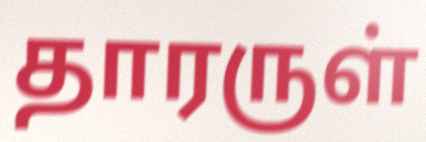
தாரருள்